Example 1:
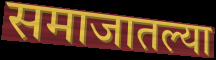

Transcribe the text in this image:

समाजातल्या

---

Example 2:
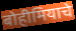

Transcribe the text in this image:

बोहीमियाचे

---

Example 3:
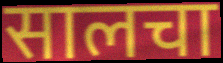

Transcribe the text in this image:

सालचा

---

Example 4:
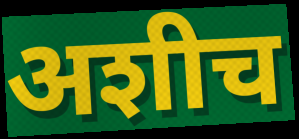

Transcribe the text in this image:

अशीच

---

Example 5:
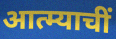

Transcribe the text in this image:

आत्म्याचीं